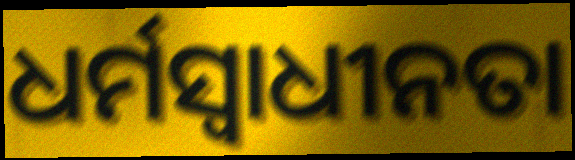
ଧର୍ମସ୍ୱାଧୀନତା